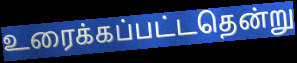
உரைக்கப்பட்டதென்று